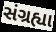
સંગ્રહ્યા